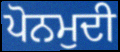
ਪੋਨਮੁਦੀ